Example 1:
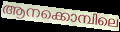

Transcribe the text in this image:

ആനക്കൊമ്പിലെ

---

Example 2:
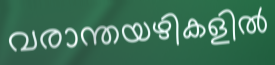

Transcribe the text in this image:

വരാന്തയഴികളിൽ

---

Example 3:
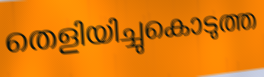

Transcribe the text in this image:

തെളിയിച്ചുകൊടുത്ത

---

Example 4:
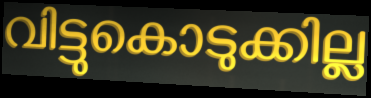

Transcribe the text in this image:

വിട്ടുകൊടുക്കില്ല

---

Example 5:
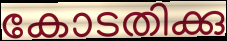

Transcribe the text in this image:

കോടതിക്കു